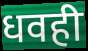
धवही